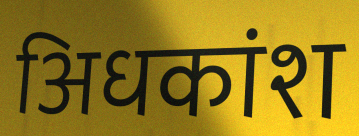
अिधकांश